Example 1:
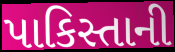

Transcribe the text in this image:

પાકિસ્તાની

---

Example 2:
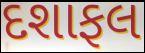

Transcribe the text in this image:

દશાફલ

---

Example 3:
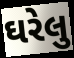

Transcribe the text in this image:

ઘરેલુ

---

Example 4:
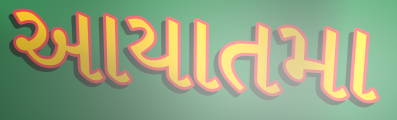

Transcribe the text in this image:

આયાતમા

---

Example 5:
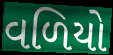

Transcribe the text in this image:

વળિયો